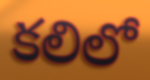
కలిలో